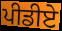
ਪੀਡੀਏ